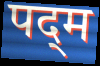
पद्‌म